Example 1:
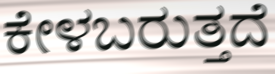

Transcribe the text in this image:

ಕೇಳಬರುತ್ತದೆ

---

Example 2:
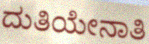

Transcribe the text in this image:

ದುತಿಯೇನಾತಿ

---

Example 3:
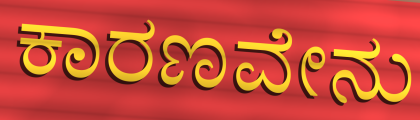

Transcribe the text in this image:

ಕಾರಣವೇನು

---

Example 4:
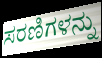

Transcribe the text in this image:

ಸರಣಿಗಳನ್ನು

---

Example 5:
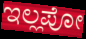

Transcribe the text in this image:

ಇಲ್ಲಪೋ